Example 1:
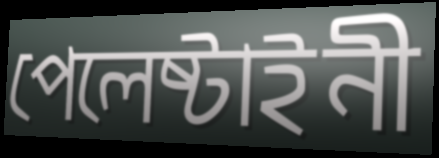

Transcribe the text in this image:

পেলেষ্টাইনী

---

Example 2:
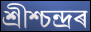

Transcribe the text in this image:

শ্ৰীশ্চন্দ্ৰৰ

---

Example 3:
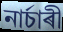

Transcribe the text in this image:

নাৰ্চাৰী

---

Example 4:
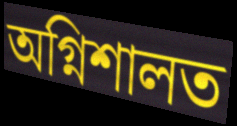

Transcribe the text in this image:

অগ্নিশালত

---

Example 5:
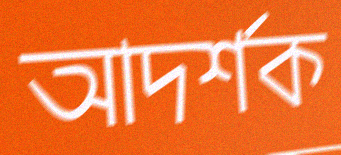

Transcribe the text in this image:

আদৰ্শক